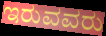
ಇರುವವರು